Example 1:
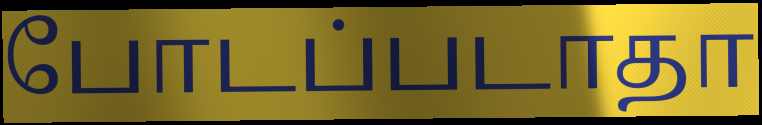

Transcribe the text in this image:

போடப்படாதா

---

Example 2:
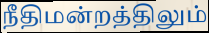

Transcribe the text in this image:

நீதிமன்றத்திலும்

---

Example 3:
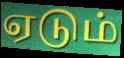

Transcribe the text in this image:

ஏடும்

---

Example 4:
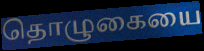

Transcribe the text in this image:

தொழுகையை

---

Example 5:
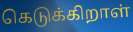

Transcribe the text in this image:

கெடுக்கிறாள்